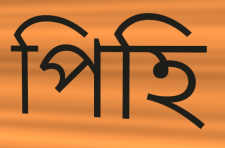
পিহি